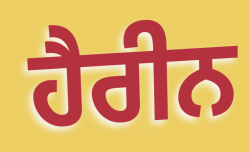
ਹੈਰੀਨ